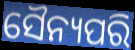
ସୈନ୍ୟପରି